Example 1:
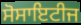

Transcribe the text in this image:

ਸੋਸਾਇਟੀਜ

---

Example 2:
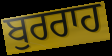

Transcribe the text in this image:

ਬੁਰਰਾਹ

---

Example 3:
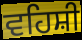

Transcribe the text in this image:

ਵਹਿਸ਼ੀ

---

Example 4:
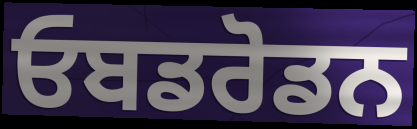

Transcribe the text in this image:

ਓਬਡਰੋਡਨ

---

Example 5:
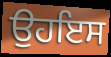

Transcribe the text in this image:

ਉਹਇਸ